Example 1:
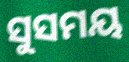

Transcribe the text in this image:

ସୁସମୟ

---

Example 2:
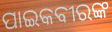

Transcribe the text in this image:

ପାଇକବୀରଙ୍କ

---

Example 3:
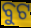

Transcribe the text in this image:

ବୁଟ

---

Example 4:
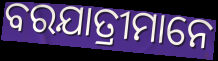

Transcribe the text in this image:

ବରଯାତ୍ରୀମାନେ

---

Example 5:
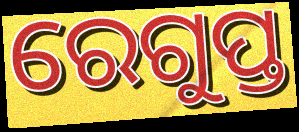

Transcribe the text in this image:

ରେଗୁପ୍ତ